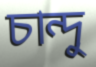
চান্দু